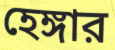
হেঙ্গার